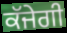
ਕੱਜੇਗੀ